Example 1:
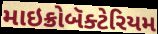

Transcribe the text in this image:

માઇક્રોબૅક્ટેરિયમ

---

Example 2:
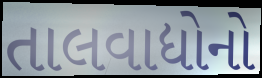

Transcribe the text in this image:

તાલવાદ્યોનો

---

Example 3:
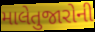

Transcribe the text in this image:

માલેતુજારોની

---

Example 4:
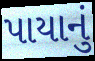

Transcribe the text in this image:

પાયાનું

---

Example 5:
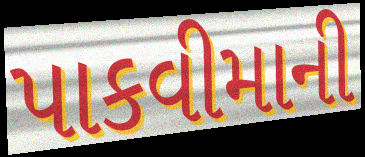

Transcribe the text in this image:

પાકવીમાની